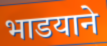
भाडयाने